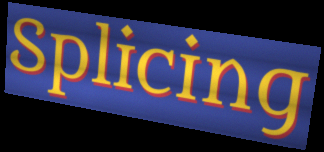
Splicing